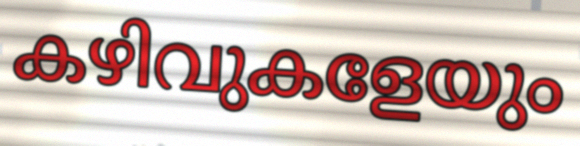
കഴിവുകളേയും